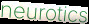
neurotics